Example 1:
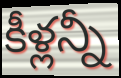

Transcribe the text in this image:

కీళ్లన్నీ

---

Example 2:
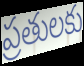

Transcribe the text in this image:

ప్రతులకు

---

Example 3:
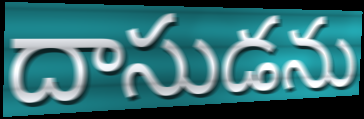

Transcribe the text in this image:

దాసుడను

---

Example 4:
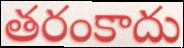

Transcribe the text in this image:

తరంకాదు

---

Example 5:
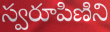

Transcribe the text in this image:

స్వరూపిణిని